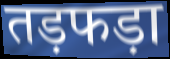
तड़फड़ा